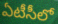
ఏటీసీలో